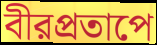
বীরপ্রতাপে